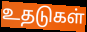
உதடுகள்